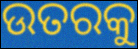
ଉତରକୁ